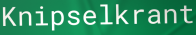
Knipselkrant